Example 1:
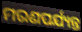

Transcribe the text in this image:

ମରଣପର୍ଯ୍ୟନ୍ତ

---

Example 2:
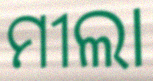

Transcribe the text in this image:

ମୀଲା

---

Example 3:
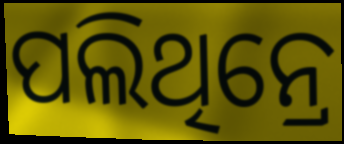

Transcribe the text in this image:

ପଲିଥିନ୍ରେ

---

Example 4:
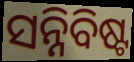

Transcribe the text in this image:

ସନ୍ନିବିଷ୍ଟ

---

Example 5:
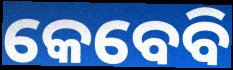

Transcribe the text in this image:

କେବେବି